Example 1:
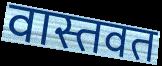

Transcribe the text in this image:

वास्‍तवत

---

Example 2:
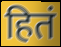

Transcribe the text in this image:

हितं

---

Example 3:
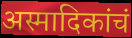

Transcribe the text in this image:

अस्मादिकांचं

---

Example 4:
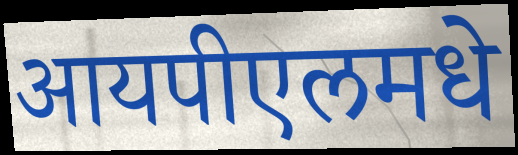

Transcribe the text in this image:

आयपीएलमधे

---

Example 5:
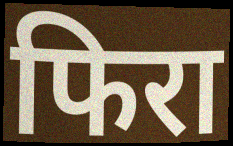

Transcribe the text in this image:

फिरा